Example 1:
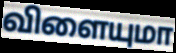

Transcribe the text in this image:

விளையுமா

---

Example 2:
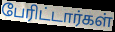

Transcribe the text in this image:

பேரிட்டார்கள்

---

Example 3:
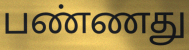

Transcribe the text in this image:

பண்ணது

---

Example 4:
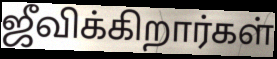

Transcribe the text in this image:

ஜீவிக்கிறார்கள்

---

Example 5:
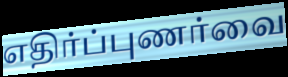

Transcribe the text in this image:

எதிர்ப்புணர்வை